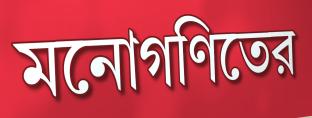
মনোগণিতের